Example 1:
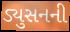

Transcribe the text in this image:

ડ્યુસનની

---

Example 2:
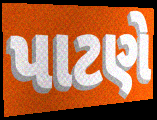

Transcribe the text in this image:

પાટણે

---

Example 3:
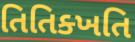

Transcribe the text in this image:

તિતિક્ખતિ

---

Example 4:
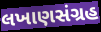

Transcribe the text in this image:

લખાણસંગ્રહ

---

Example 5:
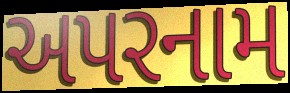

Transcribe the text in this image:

અપરનામ